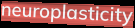
neuroplasticity